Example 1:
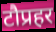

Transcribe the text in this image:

टौप्रहर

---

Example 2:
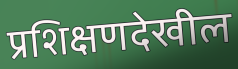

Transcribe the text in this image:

प्रशिक्षणदेखील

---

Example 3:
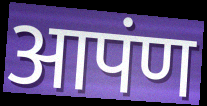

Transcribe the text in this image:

आपंण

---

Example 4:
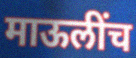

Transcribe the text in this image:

माऊलींच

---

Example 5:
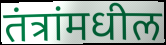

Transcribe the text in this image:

तंत्रांमधील